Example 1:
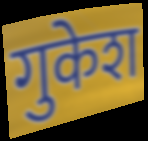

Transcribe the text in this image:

गुकेश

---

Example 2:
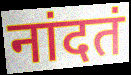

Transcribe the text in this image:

नांदतं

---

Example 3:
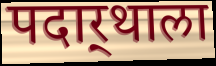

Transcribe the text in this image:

पदार्थाला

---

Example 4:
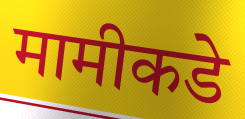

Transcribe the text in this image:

मामीकडे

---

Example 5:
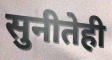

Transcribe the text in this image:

सुनीतेही